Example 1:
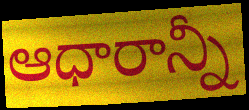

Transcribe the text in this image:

ఆధారాన్నీ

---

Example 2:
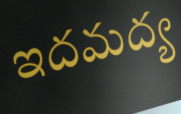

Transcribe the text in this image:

ఇదమద్య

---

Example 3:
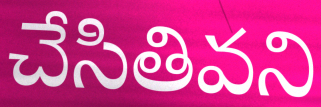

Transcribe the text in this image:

చేసితివని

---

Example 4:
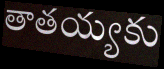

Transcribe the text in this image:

తాతయ్యకు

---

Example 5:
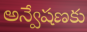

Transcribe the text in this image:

అన్వేషణకు